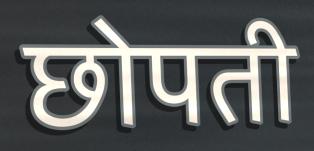
छोपती